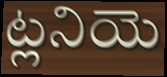
ట్లనియె